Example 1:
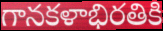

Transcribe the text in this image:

గానకళాభిరతికి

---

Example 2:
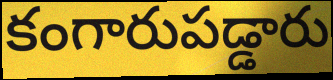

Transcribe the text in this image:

కంగారుపడ్డారు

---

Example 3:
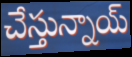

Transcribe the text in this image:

చేస్తున్నాయ్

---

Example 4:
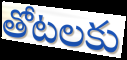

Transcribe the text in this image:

తోటలకు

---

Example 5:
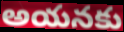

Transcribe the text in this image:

అయనకు